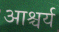
आश्चर्य